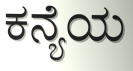
ಕನ್ಯೆಯ